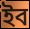
ইব